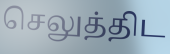
செலுத்திட